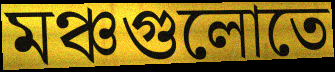
মঞ্চগুলোতে